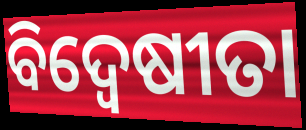
ବିଦ୍ଵେଷୀତା